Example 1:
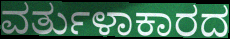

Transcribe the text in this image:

ವರ್ತುಳಾಕಾರದ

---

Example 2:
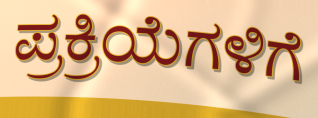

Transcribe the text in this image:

ಪ್ರಕ್ರಿಯೆಗಳಿಗೆ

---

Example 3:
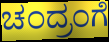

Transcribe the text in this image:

ಚಂದ್ರಂಗೆ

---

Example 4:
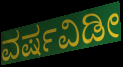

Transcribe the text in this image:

ವರ್ಷವಿಡೀ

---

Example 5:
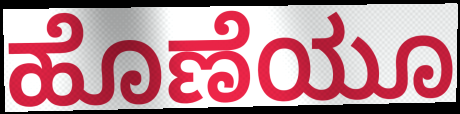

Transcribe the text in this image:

ಹೊಣೆಯೂ